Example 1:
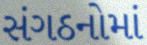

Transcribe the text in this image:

સંગઠનોમાં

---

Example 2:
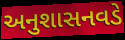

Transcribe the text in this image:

અનુશાસનવડે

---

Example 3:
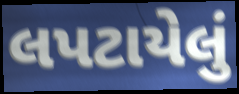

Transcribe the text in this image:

લપટાયેલું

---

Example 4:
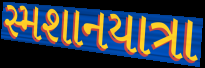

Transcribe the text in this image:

સ્મશાનયાત્રા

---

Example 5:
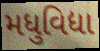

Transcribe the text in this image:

મધુવિદ્યા